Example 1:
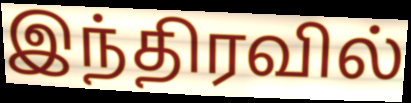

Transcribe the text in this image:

இந்திரவில்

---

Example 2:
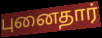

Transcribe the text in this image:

புனைதார்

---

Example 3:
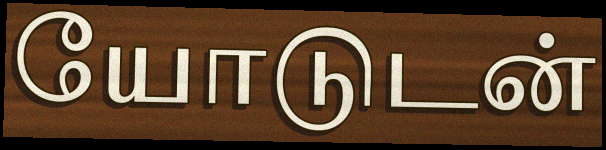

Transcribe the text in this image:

யோடுடன்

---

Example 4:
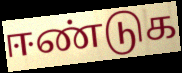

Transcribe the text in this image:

ஈண்டுக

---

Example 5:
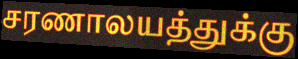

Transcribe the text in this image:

சரணாலயத்துக்கு